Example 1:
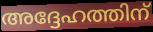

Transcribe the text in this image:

അദ്ദേഹത്തിന്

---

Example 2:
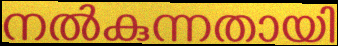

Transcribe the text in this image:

നൽകുന്നതായി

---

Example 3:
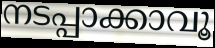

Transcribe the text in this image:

നടപ്പാക്കാവൂ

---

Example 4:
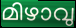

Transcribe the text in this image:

മിഴാവു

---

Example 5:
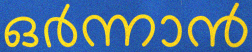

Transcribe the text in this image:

ഒർന്നാൻ